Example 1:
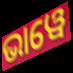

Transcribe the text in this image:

ଭାୱେ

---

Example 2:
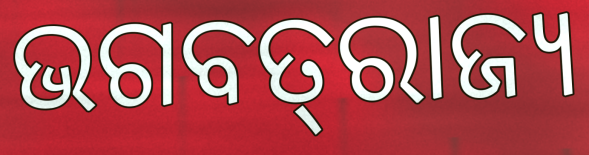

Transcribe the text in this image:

ଭଗବତ୍‌ରାଜ୍ୟ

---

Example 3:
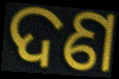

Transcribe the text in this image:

ଦଣ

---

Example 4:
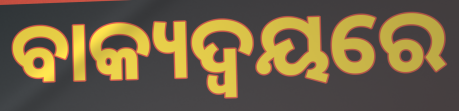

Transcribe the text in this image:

ବାକ୍ୟଦ୍ଵୟରେ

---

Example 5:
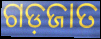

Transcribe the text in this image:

ଗଡ଼ଜାତ